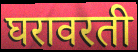
घरावरती